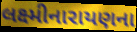
લક્ષ્મીનારાયણના